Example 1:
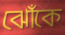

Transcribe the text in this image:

ঝোঁকে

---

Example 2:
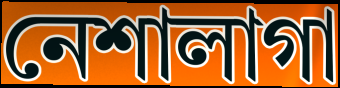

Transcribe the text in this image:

নেশালাগা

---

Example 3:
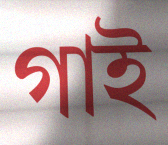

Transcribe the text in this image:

গাই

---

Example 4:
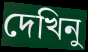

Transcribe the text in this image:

দেখিনু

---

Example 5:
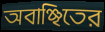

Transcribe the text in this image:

অবাঞ্ছিতের